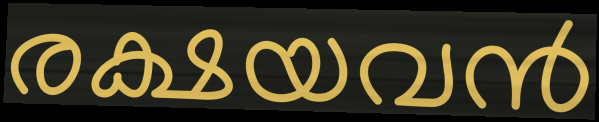
രക്ഷയവൻ